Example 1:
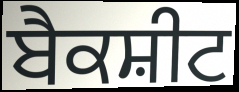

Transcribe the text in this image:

ਬੈਕਸ਼ੀਟ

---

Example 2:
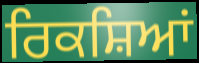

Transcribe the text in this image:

ਰਿਕਸ਼ਿਆਂ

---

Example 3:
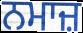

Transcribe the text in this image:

ਨਮਾਜ਼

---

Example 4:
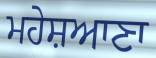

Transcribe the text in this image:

ਮਹੇਸ਼ਆਣਾ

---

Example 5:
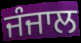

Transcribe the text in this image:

ਜੰਜਾਲ